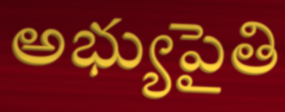
అభ్యుపైతి